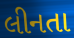
લીનતા